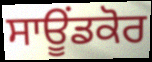
ਸਾਊਂਡਕੋਰ